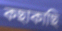
কছাকাছি